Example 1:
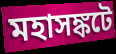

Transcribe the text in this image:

মহাসঙ্কটে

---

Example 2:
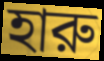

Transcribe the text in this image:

হারু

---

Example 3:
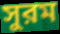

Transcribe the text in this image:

সুরম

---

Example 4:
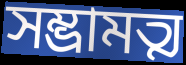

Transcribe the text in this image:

সম্ভ্রামত্ম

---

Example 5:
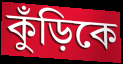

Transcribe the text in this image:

কুঁড়িকে